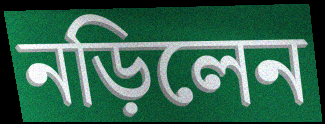
নড়িলেন